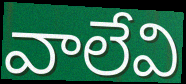
వాలేవి